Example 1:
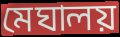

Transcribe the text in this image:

মেঘালয়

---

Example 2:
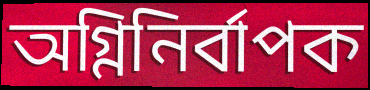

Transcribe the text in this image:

অগ্নিনিৰ্বাপক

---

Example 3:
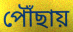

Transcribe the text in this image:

পৌঁছায়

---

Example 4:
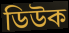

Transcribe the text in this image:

ডিউক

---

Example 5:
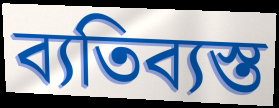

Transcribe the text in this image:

ব্যতিব্যস্ত